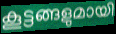
കൂട്ടങ്ങളുമായി